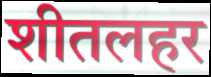
शीतलहर